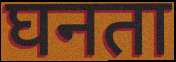
घनता